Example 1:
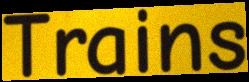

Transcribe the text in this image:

Trains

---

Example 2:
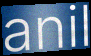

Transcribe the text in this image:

anil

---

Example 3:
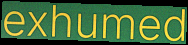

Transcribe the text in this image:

exhumed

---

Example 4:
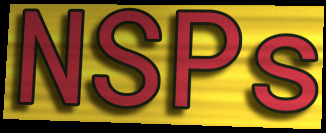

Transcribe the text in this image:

NSPs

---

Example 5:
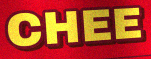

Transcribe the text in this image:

CHEE